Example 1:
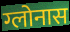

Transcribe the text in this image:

ग्लोनास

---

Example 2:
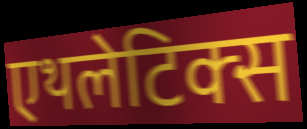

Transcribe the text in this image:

एथलेटिक्‍स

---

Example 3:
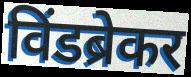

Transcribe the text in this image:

विंडब्रेकर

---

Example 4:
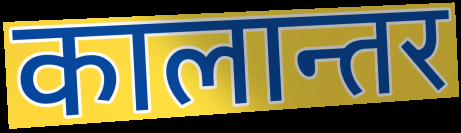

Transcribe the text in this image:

कालान्तर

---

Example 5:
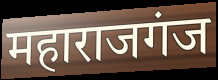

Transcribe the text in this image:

महाराजगंज